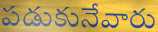
పడుకునేవారు